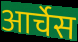
आर्चेस